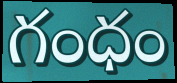
గంధం